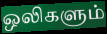
ஒலிகளும்